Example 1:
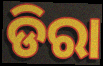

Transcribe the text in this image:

ଡିରା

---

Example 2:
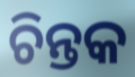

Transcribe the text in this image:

ଚିନ୍ତକ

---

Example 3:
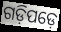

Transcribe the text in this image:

ଗଡ଼ିପଡ଼େ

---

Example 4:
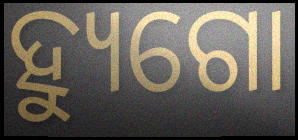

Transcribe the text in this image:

ହ୍ୟୁଗୋ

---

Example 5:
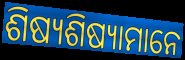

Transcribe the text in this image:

ଶିଷ୍ୟଶିଷ୍ୟାମାନେ